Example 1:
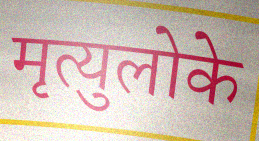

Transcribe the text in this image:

मृत्युलोके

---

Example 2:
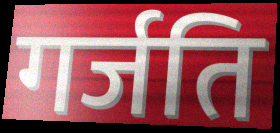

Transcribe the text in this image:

गर्जति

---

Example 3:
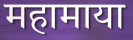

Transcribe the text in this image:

महामाया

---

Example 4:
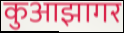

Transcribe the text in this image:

कुआझागर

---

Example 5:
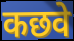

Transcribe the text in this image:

कछवे